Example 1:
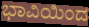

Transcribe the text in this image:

ಭಾವಿಯಿಂದ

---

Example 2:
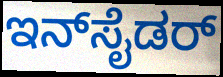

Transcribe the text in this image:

ಇನ್‌ಸೈಡರ್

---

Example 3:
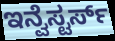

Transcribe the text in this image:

ಇನ್ವೆಸ್ಟರ್ಸ್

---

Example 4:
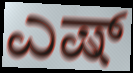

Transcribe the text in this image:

ಎಷ್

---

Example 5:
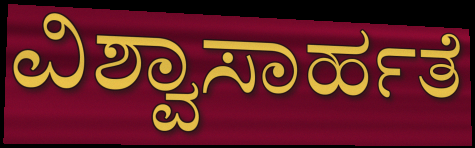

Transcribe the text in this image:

ವಿಶ್ವಾಸಾರ್ಹತೆ